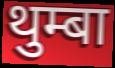
थुम्बा